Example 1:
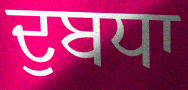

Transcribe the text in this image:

ਦੁਬਧਾ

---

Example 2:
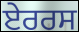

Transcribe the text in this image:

ਏਰਰਸ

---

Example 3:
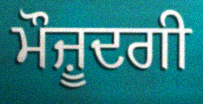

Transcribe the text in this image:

ਮੌਜ਼ੂਦਗੀ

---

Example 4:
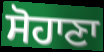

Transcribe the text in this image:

ਸੋਹਾਣਾ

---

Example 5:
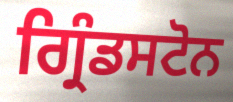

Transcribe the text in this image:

ਗ੍ਰਿੰਡਸਟੋਨ